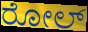
ರೋಲ್